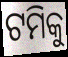
ଟମିକୁ